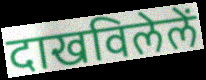
दाखविलेलें